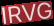
IRVG